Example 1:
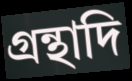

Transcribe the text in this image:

গ্রন্থাদি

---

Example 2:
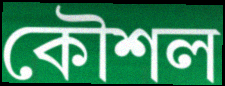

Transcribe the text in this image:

কৌশল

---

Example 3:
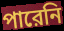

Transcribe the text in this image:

পারেনি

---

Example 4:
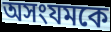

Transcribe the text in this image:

অসংযমকে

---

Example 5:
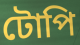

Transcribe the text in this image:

টোপি